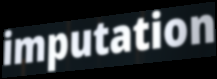
imputation